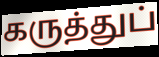
கருத்துப்